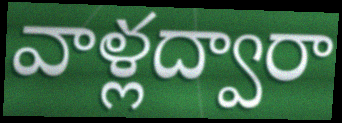
వాళ్లద్వారా